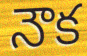
నౌక